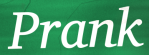
Prank